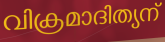
വിക്രമാദിത്യന്